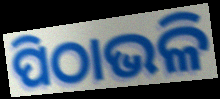
ପିଠାଭଳି